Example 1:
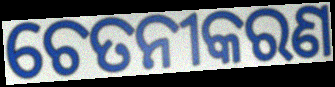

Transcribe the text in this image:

ଚେତନୀକରଣ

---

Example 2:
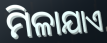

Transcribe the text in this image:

ମିଳାଯାଏ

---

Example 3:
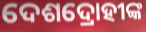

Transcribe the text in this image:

ଦେଶଦ୍ରୋହୀଙ୍କ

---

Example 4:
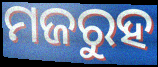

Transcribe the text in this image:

ମଜରୁହ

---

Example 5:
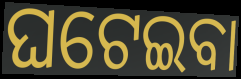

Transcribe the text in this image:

ଘଟେଇବା